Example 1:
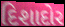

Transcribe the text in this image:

દિશાદોર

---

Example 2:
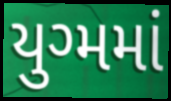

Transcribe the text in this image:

યુગ્મમાં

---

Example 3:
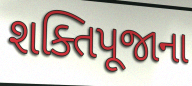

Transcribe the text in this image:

શક્તિપૂજાના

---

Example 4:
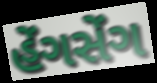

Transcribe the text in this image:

હેંગસેંગ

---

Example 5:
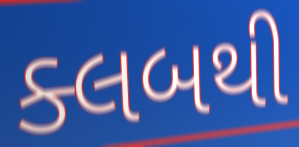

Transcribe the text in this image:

ક્લબથી